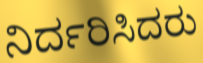
ನಿರ್ದರಿಸಿದರು